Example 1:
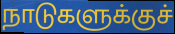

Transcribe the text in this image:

நாடுகளுக்குச்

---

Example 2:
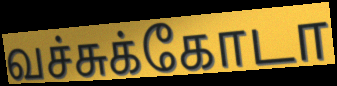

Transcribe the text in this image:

வச்சுக்கோடா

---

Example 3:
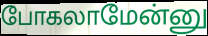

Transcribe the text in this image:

போகலாமேன்னு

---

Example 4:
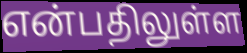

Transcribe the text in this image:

என்பதிலுள்ள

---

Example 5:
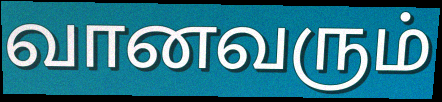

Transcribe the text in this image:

வானவரும்